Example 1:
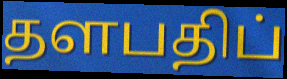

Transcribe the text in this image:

தளபதிப்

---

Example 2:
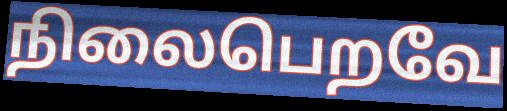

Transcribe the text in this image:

நிலைபெறவே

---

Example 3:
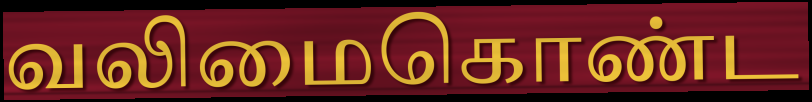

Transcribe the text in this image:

வலிமைகொண்ட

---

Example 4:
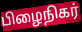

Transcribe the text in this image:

பிழைநிகர்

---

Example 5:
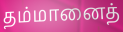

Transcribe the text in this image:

தம்மானைத்